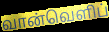
வான்வெளிப்